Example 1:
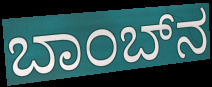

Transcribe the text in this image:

ಬಾಂಬ್‍ನ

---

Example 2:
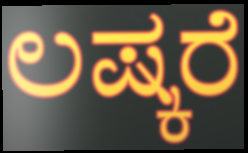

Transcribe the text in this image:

ಲಷ್ಕರೆ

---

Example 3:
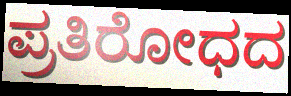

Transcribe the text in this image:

ಪ್ರತಿರೋಧದ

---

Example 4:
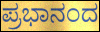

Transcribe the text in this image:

ಪ್ರಭಾನಂದ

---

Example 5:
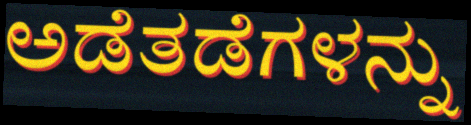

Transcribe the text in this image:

ಅಡೆತಡೆಗಳನ್ನು